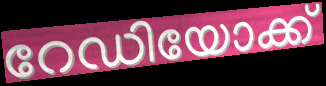
റേഡിയോക്ക്